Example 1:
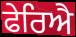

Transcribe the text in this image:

ਫੇਰਿਐ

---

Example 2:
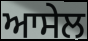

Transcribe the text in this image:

ਆਸੇਲ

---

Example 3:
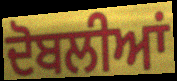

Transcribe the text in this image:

ਦੋਬਲੀਆਂ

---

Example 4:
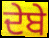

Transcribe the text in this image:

ਦੇਬੇ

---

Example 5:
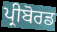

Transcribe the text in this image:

ਪ੍ਰੀਬੋਰਡ